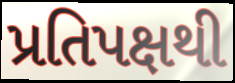
પ્રતિપક્ષથી